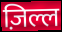
ज़िल्ल